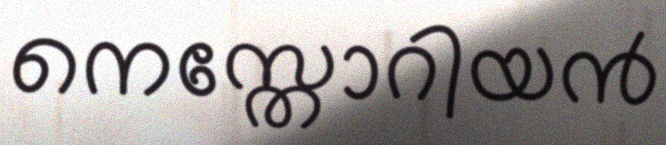
നെസ്തോറിയൻ